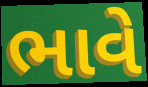
ભાવે